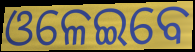
ଓଳେଇବେ